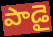
పాడై